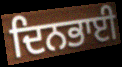
ਦਿਨਭਾਈ